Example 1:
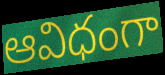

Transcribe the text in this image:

ఆవిధంగా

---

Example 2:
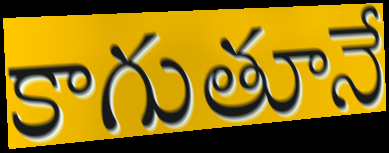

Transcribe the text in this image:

కాగుతూనే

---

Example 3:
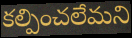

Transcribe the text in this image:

కల్పించలేమని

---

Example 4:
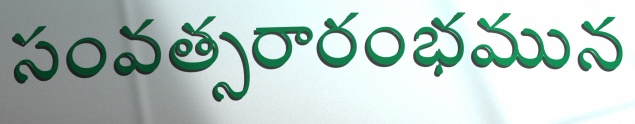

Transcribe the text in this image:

సంవత్సరారంభమున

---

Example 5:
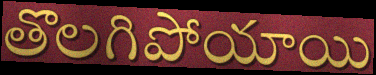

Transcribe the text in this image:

తొలగిపోయాయి